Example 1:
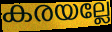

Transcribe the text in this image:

കരയല്ലേ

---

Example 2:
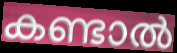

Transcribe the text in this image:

കണ്ടാൽ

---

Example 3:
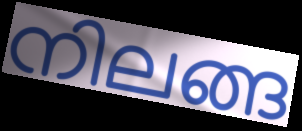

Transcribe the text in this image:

നിലങ്ങ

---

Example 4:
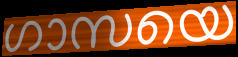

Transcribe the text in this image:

ഗാസയെ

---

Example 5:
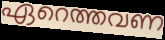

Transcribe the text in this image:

ഏറെത്തവണ